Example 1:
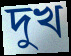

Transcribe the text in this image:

দুখ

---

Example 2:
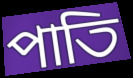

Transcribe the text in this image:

পাতি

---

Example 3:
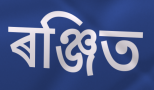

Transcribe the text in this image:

ৰঞ্জিত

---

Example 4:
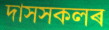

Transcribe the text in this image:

দাসসকলৰ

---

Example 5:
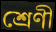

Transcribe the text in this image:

শ্ৰেণী